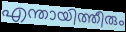
എന്തായിത്തീരും